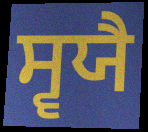
ਸ੍ਵਯੈ